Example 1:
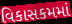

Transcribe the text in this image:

વિકાસકમમાં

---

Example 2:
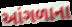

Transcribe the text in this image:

આંગળાના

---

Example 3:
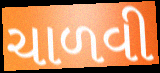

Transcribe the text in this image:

ચાળવી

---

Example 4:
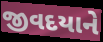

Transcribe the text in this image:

જીવદયાને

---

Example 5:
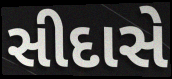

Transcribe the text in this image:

સીદાસે